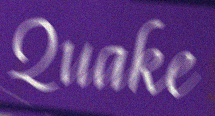
Quake